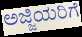
ಅಜ್ಜಿಯರಿಗೆ